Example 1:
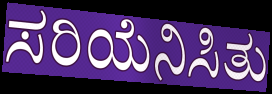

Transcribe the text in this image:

ಸರಿಯೆನಿಸಿತು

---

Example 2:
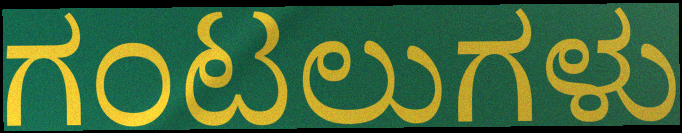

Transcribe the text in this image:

ಗಂಟಲುಗಳು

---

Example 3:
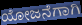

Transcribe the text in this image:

ಯೋಜನೆಗಾಗಿ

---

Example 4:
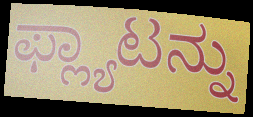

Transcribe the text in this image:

ಫ್ಲ್ಯಾಟನ್ನು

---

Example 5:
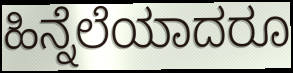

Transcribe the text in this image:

ಹಿನ್ನೆಲೆಯಾದರೂ